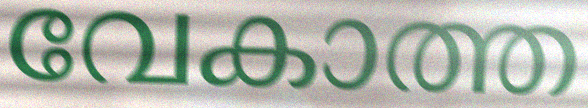
വേകാത്ത